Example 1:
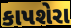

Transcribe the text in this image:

કાપશેરા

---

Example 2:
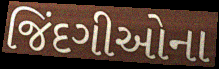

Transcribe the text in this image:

જિંદગીઓના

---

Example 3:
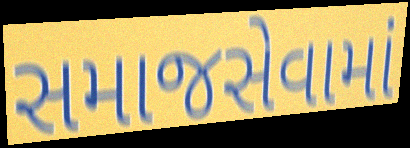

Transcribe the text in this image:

સમાજસેવામાં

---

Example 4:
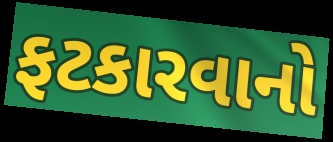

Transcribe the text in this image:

ફટકારવાનો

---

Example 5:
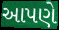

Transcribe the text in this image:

આપણે